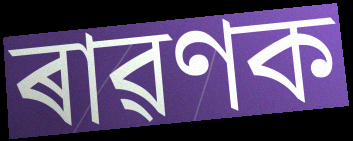
ৰাৱণক